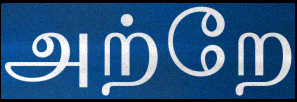
அற்றே